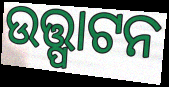
ଉତ୍ତ୍ପାଟନ